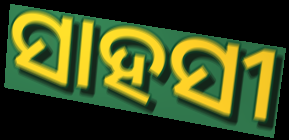
ସାହସୀ